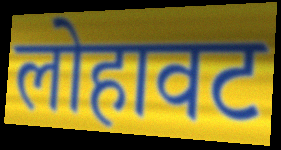
लोहावट